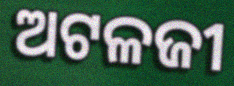
ଅଟଳଜୀ